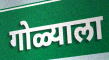
गोळ्याला